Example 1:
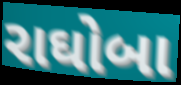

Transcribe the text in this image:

રાઘોબા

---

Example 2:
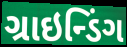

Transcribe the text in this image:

ગ્રાઇન્ડિંગ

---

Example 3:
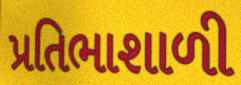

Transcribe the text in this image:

પ્રતિભાશાળી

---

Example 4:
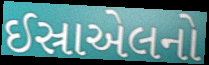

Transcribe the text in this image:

ઈસ્રાએલનો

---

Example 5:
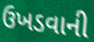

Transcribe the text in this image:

ઉખડવાની